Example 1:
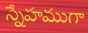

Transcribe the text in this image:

స్నేహముగా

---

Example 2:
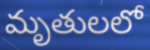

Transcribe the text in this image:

మృతులలో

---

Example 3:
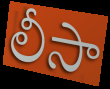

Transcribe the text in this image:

లీసా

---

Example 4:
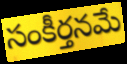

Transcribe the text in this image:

సంకీర్తనమే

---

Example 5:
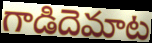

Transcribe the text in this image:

గాడిదెమాట